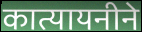
कात्यायनीने